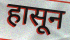
हासून